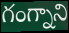
గంగ్నాని